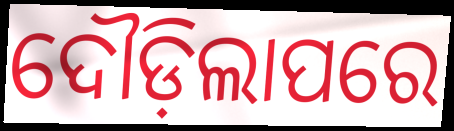
ଦୌଡ଼ିଲାପରେ